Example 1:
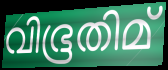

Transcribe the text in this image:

വിഭൂതിമ്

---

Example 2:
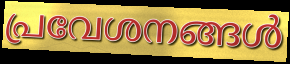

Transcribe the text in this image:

പ്രവേശനങ്ങൾ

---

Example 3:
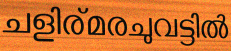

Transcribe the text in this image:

ചളിര്മരചുവട്ടിൽ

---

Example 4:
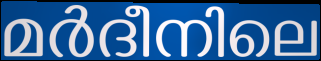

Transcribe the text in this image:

മർദീനിലെ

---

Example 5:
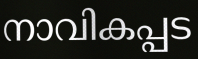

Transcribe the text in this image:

നാവികപ്പട